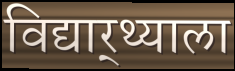
विद्यार्थ्याला